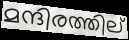
മന്ദിരത്തില്